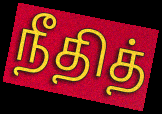
நீதித்